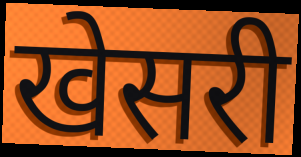
खेसरी